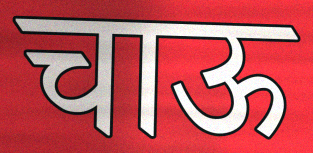
चाऊ